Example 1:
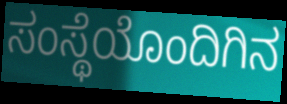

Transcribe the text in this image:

ಸಂಸ್ಥೆಯೊಂದಿಗಿನ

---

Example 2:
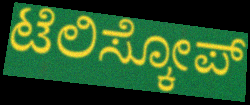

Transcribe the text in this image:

ಟೆಲಿಸ್ಕೋಪ್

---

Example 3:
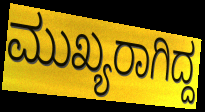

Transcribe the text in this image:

ಮುಖ್ಯರಾಗಿದ್ದ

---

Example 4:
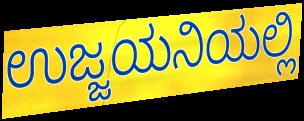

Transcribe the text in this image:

ಉಜ್ಜಯನಿಯಲ್ಲಿ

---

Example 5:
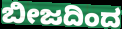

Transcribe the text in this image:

ಬೀಜದಿಂದ